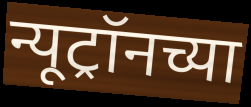
न्यूट्रॉनच्या